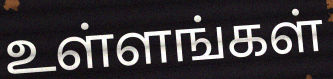
உள்ளங்கள்